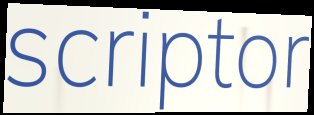
scriptor